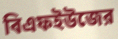
বিএফইউজের